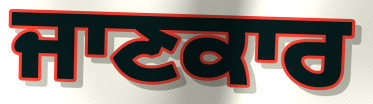
ਜਾਣਕਾਰ